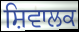
ਸ਼ਿਵਾਲਕ